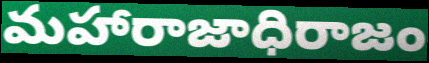
మహారాజాధిరాజం